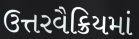
ઉત્તરવૈક્રિયમાં